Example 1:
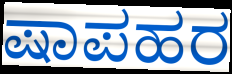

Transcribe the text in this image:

ಷಾಪಹರ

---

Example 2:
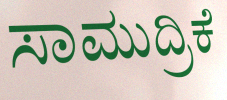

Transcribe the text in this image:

ಸಾಮುದ್ರಿಕೆ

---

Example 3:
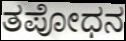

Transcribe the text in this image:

ತಪೋಧನ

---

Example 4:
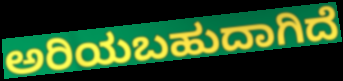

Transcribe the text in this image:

ಅರಿಯಬಹುದಾಗಿದೆ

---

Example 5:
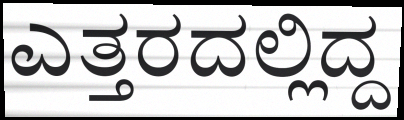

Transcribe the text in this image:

ಎತ್ತರದಲ್ಲಿದ್ದ